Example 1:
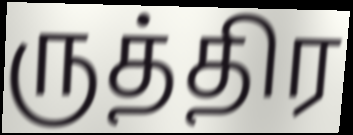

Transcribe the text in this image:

ருத்திர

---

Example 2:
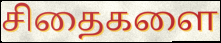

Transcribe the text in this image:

சிதைகளை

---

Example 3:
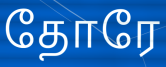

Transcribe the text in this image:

தோரே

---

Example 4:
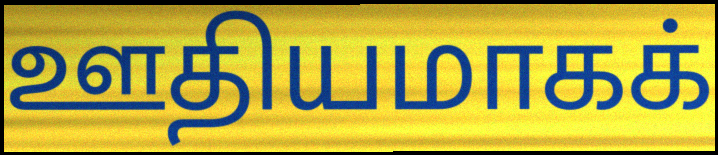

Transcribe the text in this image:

ஊதியமாகக்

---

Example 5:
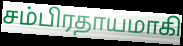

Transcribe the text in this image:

சம்பிரதாயமாகி